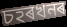
চহৰখনৰ